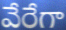
వేరేగా